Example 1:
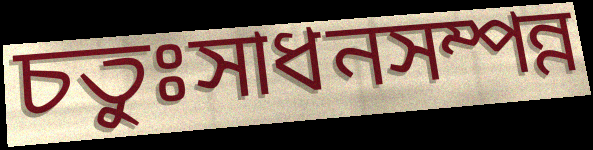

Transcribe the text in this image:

চতুঃসাধনসম্পন্ন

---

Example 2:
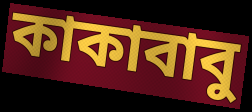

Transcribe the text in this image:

কাকাবাবু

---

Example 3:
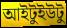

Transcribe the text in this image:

আইটুইউটু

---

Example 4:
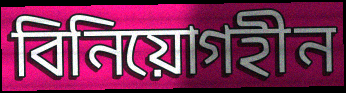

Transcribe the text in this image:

বিনিয়োগহীন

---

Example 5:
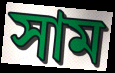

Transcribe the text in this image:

সাম